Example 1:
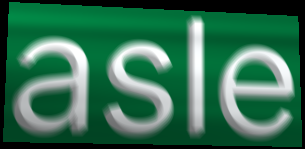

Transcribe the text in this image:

asle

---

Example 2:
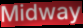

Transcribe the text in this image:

Midway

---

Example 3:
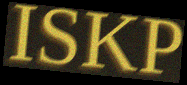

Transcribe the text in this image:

ISKP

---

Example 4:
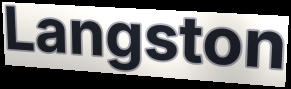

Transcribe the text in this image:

Langston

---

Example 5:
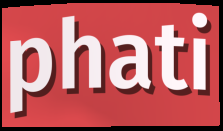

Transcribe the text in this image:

phati